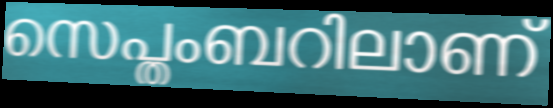
സെപ്തംബറിലാണ്